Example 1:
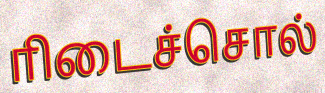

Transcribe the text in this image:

ரிடைச்சொல்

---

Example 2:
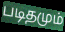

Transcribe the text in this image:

படிதமும்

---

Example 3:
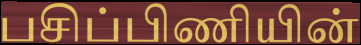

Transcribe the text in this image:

பசிப்பிணியின்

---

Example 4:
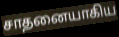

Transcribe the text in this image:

சாதனையாகிய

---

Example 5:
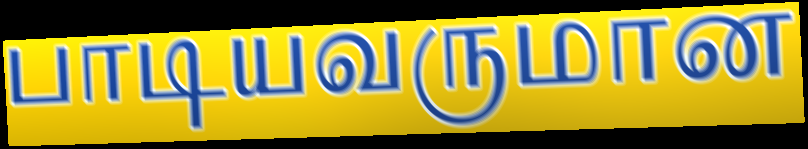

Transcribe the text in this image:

பாடியவருமான